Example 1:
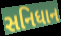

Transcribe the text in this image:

સનિધાન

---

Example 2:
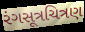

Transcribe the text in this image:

રંગસૂત્રચિત્રણ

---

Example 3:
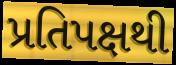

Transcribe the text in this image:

પ્રતિપક્ષથી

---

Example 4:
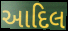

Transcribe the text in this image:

આદિલ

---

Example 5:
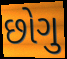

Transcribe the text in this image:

છોગુ